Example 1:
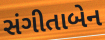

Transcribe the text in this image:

સંગીતાબેન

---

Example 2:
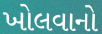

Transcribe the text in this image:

ખોલવાનો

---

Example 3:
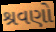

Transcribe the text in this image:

શ્રવણો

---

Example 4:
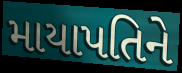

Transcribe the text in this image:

માયાપતિને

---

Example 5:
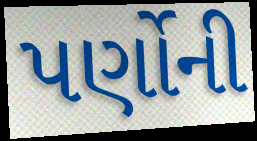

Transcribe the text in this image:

પર્ણોની